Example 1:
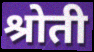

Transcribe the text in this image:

श्रोती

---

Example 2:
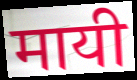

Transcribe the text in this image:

मायी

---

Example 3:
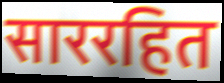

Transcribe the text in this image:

साररहित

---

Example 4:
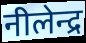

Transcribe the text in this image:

नीलेन्द्र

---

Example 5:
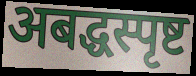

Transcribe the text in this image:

अबद्धस्पृष्ट